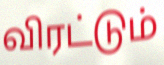
விரட்டும்